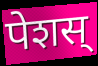
पेशस्